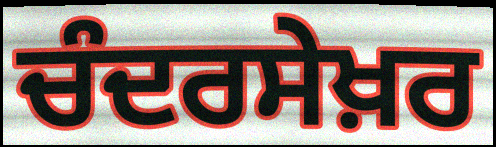
ਚੰਦਰਸੇਖ਼ਰ